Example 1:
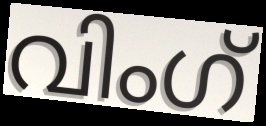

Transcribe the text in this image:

വിംഗ്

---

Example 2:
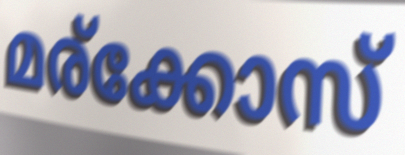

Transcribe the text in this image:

മര്ക്കോസ്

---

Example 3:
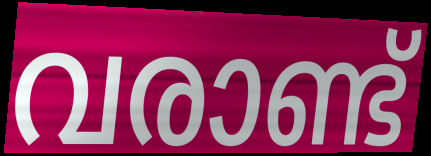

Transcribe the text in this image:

വരാണ്ട്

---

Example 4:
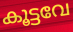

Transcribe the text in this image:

കൂട്ടവേ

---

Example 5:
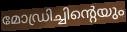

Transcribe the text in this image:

മോഡ്രിച്ചിന്റെയും